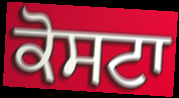
ਕੋਸਟਾ